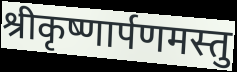
श्रीकृष्णार्पणमस्तु